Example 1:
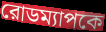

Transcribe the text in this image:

রোডম্যাপকে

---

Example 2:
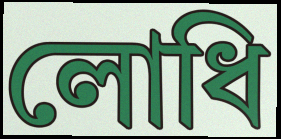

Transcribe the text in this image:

লোধি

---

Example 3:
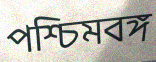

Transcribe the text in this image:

পশ্চিমবঙ্গ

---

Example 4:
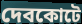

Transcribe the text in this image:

দেবকোটে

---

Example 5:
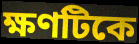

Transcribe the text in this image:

ক্ষণটিকে